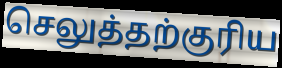
செலுத்தற்குரிய